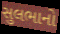
સુલભાનો